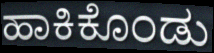
ಹಾಕಿಕೊಂಡು